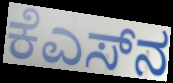
ಕೆಎಸ್‌ನ